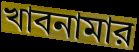
খাবনামার